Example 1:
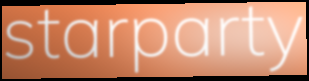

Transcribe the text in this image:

starparty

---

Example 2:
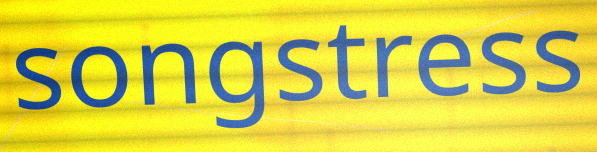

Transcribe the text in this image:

songstress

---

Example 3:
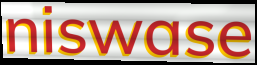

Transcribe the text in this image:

niswase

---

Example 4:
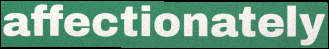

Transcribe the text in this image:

affectionately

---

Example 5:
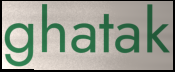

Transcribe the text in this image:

ghatak